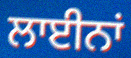
ਲਾਈਨਾਂ